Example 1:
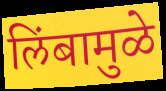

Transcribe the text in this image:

लिंबामुळे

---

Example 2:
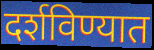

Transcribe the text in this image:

दर्शविण्यात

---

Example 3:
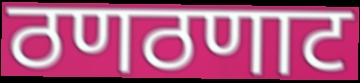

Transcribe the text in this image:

ठणठणाट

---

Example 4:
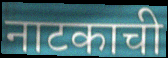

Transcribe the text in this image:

नाटकाची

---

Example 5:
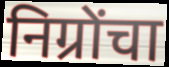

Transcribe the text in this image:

निग्रोंचा